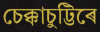
চেক্কাচুট্টিৰে